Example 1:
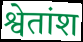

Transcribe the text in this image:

श्वेतांश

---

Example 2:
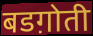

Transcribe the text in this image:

बडग़ोती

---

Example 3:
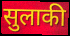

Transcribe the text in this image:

सुलाकी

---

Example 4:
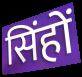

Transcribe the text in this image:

सिंहों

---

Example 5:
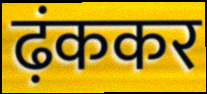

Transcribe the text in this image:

ढ़ंककर